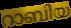
റാബിയ